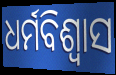
ଧର୍ମବିଶ୍ବାସ